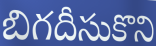
బిగదీసుకొని